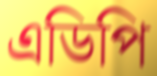
এডিপি